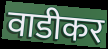
वाडीकर